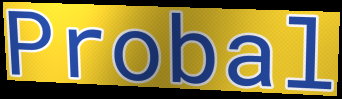
Probal